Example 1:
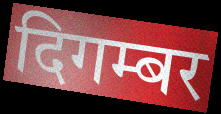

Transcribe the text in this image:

दिगम्बर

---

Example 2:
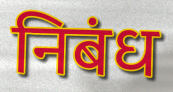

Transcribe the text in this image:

निबंध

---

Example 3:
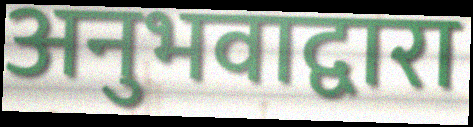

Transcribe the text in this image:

अनुभवाद्वारा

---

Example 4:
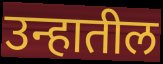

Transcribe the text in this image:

उन्हातील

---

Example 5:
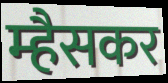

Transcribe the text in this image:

म्हैसकर